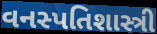
વનસ્પતિશાસ્ત્રી